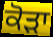
ਕੋੜਾ